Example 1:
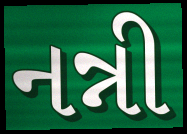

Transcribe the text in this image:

નન્ની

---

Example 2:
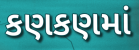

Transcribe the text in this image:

કણકણમાં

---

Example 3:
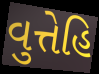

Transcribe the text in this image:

વુત્તેહિ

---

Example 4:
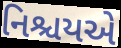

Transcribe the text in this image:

નિશ્ચયએ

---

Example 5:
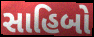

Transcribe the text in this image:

સાહિબો